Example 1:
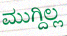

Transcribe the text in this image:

ಮುಗ್ದಿಲ್ಲ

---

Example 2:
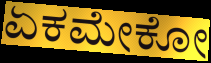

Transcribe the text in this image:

ಏಕಮೇಕೋ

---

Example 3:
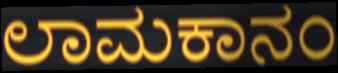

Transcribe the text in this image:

ಲಾಮಕಾನಂ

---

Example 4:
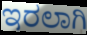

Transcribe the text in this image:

ಇರಲಾಗಿ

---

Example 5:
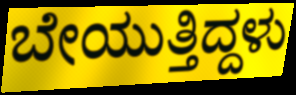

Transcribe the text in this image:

ಬೇಯುತ್ತಿದ್ದಳು